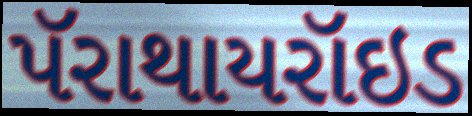
પૅરાથાયરૉઇડ